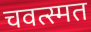
चवत्स्मत